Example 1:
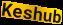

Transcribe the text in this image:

Keshub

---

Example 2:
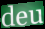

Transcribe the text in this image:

deu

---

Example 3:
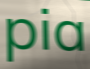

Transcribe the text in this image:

pia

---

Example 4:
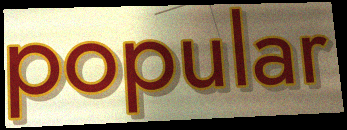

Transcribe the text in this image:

popular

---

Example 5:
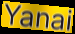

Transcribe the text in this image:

Yanai